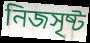
নিজসৃষ্ট